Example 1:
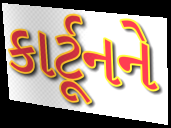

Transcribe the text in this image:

કાર્ટૂનને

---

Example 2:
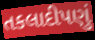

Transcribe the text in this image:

તકલાદીપણું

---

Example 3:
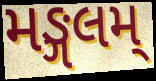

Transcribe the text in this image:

મઙ્ગલમ્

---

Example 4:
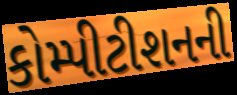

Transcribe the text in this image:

કોમ્પીટીશનની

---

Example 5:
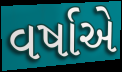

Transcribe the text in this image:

વર્ષાએ